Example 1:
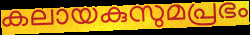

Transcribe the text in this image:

കലായകുസുമപ്രഭം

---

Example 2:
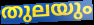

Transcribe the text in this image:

തുലയും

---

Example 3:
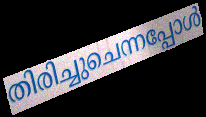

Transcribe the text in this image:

തിരിച്ചുചെന്നപ്പോൾ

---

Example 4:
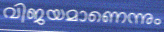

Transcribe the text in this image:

വിജയമാണെന്നും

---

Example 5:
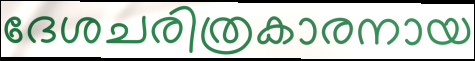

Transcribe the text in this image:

ദേശചരിത്രകാരനായ